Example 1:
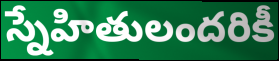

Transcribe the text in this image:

స్నేహితులందరికీ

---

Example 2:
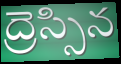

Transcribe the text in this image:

ద్రెస్సిన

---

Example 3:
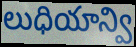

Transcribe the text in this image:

లుధియాన్వి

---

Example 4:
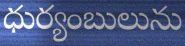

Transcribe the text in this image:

ధుర్యంబులును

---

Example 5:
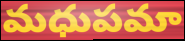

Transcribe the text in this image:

మధుపమా